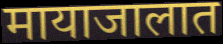
मायाजालात